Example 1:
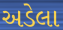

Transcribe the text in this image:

અડેલા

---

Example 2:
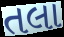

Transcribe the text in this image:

તલા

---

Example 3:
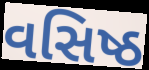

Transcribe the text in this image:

વસિષ્ઠ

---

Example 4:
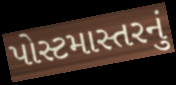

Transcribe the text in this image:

પોસ્ટમાસ્તરનું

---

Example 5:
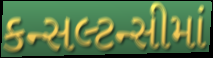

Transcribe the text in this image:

કન્સલ્ટન્સીમાં